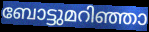
ബോട്ടുമറിഞ്ഞാ